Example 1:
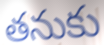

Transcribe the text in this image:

తనుకు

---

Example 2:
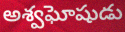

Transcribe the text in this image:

అశ్వఘోషుడు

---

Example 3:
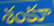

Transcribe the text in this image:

శంకూ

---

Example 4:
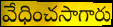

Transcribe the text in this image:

వేధించసాగారు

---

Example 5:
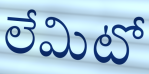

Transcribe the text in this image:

లేమిటో